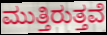
ಮುತ್ತಿರುತ್ತವೆ